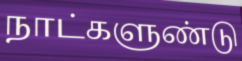
நாட்களுண்டு